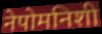
नेपोमनिशी